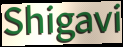
Shigavi